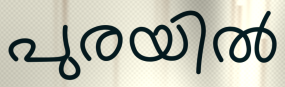
പുരയിൽ